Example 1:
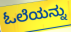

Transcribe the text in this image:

ಓಲೆಯನ್ನು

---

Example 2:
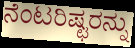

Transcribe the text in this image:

ನೆಂಟರಿಷ್ಟರನ್ನು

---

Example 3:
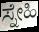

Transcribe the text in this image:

ಸ್ನೇಹಿ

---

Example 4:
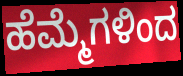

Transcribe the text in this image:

ಹೆಮ್ಮೆಗಳಿಂದ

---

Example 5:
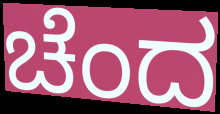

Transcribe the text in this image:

ಚೆಂದ